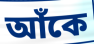
আঁকে